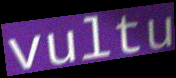
vultu